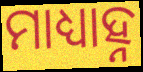
ମାଧ୍ୟାହ୍ନ